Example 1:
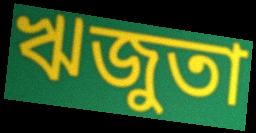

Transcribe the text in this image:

ঋজুতা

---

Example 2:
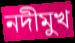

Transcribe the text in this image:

নদীমুখ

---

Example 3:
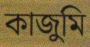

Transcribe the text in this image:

কাজুমি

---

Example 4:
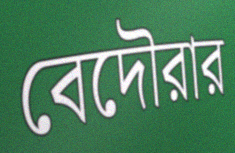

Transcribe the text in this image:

বেদৌরার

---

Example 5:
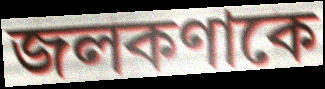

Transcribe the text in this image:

জলকণাকে